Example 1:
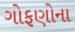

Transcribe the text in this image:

ગોફણોના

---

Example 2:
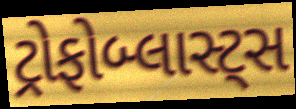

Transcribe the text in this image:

ટ્રોફોબ્લાસ્ટ્સ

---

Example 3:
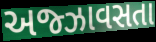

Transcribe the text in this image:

અજ્ઝાવસતા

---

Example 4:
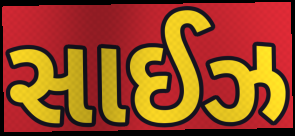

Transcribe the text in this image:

સાઈઝ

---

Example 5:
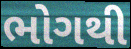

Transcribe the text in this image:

ભોગથી